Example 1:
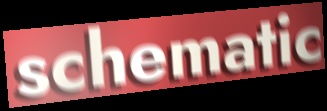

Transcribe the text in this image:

schematic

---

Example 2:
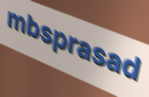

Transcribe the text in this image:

mbsprasad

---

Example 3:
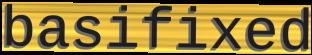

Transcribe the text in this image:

basifixed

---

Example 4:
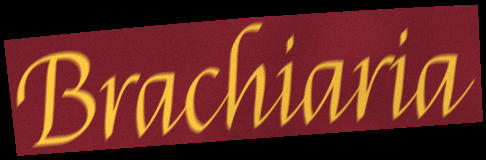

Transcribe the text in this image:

Brachiaria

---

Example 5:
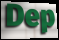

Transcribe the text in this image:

Dep